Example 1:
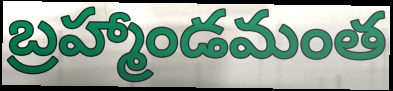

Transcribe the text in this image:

బ్రహ్మాండమంత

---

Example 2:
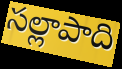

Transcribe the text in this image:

సల్లాపాది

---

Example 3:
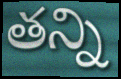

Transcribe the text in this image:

తన్ని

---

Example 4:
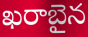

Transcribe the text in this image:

ఖరాబైన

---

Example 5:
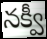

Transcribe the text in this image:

నక్వీ